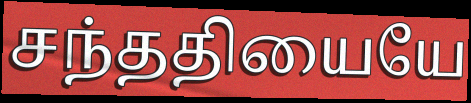
சந்ததியையே